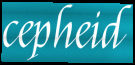
cepheid